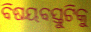
ବିଷୟବସ୍ତୁଟିକୁ